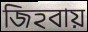
জিহবায়